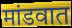
मांडवात